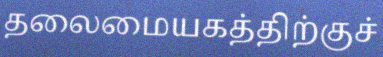
தலைமையகத்திற்குச்